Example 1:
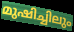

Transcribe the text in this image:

മുഷിച്ചിലും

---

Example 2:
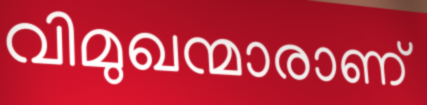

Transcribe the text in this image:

വിമുഖന്മാരാണ്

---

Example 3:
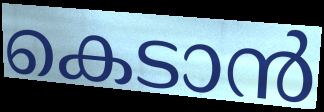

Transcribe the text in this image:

കെടാൻ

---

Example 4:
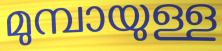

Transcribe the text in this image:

മുമ്പായുള്ള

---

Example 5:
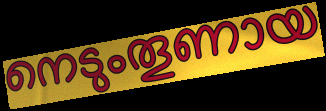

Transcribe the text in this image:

നെടുംതൂണായ